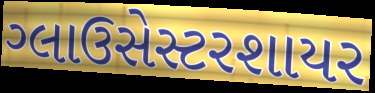
ગ્લાઉસેસ્ટરશાયર